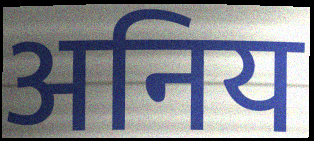
अनिय